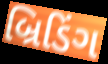
બ્રિડિંગ